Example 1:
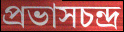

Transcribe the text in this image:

প্রভাসচন্দ্র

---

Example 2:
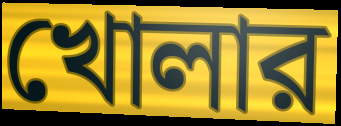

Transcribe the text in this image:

খোলার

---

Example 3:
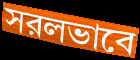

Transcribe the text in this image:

সরলভাবে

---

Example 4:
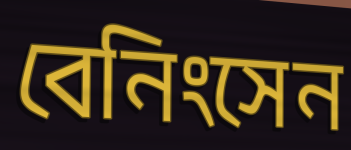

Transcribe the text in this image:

বেনিংসেন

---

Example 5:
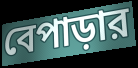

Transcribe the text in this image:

বেপাড়ার